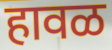
हावळ